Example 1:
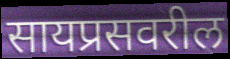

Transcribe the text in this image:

सायप्रसवरील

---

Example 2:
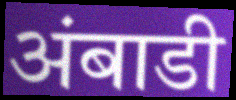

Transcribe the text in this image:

अंबाडी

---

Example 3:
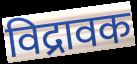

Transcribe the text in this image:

विद्रावक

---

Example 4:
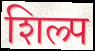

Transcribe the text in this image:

शिल्प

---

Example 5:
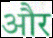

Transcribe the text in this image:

और